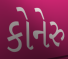
કોનેરુ